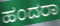
ಹಂದರಾ